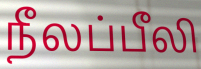
நீலப்பீலி